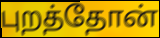
புறத்தோன்